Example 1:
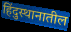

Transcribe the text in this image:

हिंदुस्थानातील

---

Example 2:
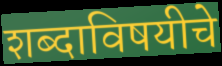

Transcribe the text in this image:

शब्दाविषयीचे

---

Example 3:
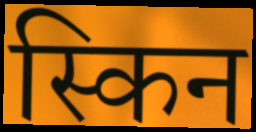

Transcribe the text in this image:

स्किन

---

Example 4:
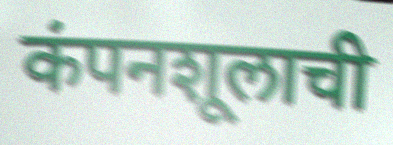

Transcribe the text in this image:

कंपनशूलाची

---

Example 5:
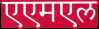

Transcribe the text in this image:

एएमएल